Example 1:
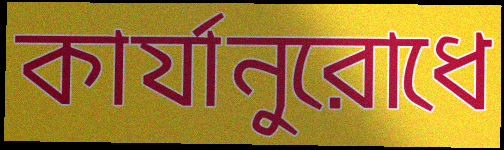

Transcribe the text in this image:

কার্যানুরোধে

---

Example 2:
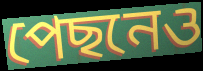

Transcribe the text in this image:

পেছনেও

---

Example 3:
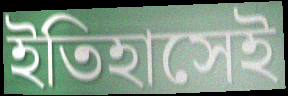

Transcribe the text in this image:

ইতিহাসেই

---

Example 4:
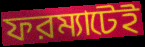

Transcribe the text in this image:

ফরম্যাটেই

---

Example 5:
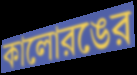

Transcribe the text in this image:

কালোরঙের